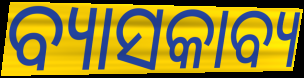
ବ୍ୟାସକାବ୍ୟ